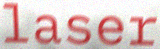
laser